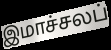
இமாச்சலப்